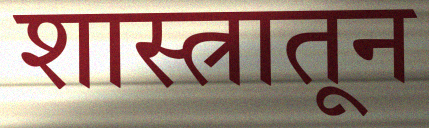
शास्त्रातून